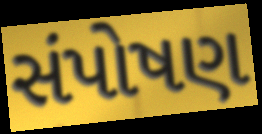
સંપોષણ